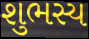
શુભસ્ય